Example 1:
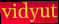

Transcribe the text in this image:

vidyut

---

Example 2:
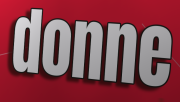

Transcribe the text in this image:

donne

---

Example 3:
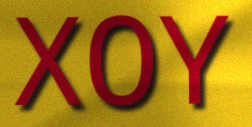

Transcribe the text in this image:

XOY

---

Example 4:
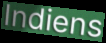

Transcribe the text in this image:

Indiens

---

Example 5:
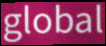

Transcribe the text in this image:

global